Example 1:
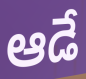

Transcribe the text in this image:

ఆడే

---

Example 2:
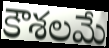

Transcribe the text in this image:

కౌశలమే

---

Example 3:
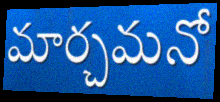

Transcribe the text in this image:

మార్చమనో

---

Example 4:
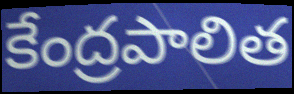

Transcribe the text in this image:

కేంద్రపాలిత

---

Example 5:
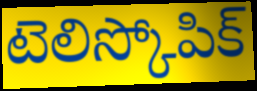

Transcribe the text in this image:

టెలిస్కోపిక్